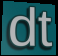
dt